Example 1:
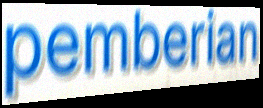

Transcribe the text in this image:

pemberian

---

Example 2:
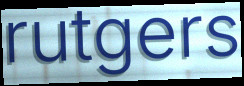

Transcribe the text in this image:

rutgers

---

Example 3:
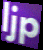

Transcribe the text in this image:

ljp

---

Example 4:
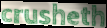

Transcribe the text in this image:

crusheth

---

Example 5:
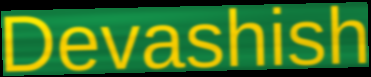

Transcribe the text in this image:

Devashish